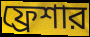
ফ্রেশার